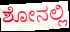
ಶೋನಲ್ಲಿ